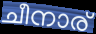
ചീനാര്